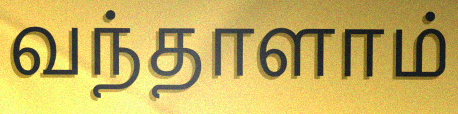
வந்தாளாம்